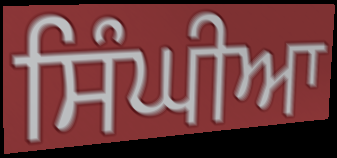
ਸਿੰਘੀਆ